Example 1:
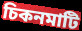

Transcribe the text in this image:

চিকনমাটি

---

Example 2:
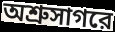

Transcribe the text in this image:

অশ্রুসাগরে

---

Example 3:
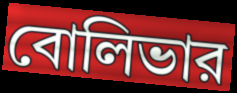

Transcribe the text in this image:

বোলিভার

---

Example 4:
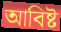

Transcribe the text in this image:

আবিষ্ট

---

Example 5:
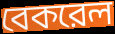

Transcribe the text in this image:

বেকরেল